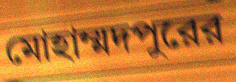
মোহাম্মদপুরের